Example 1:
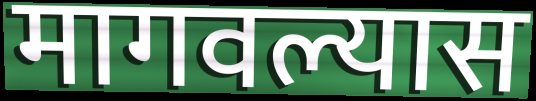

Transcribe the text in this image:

मागवल्यास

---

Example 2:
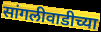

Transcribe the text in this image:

सांगलीवाडीच्या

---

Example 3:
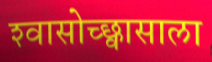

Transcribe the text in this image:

श्वासोच्छ्वासाला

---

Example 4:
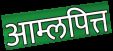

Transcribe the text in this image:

आम्लपित्त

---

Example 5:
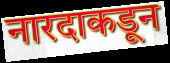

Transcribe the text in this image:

नारदाकडून